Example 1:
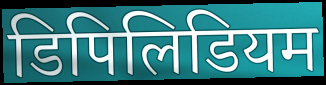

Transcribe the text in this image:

डिपिलिडियम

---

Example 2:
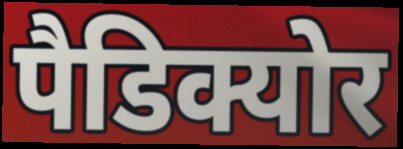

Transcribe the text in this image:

पैडिक्योर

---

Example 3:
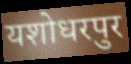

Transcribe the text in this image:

यशोधरपुर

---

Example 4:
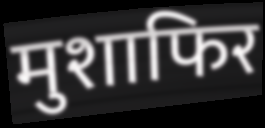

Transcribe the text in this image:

मुशाफिर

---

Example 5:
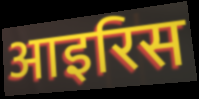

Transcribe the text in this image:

आइरिस